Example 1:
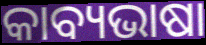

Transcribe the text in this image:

କାବ୍ୟଭାଷା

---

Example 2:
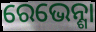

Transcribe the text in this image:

ରେଭେନ୍ଶା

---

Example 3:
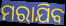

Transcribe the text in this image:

ମରାଯିବ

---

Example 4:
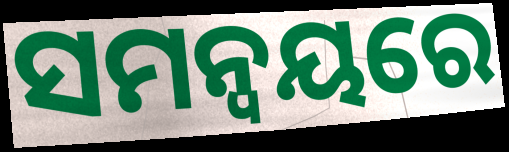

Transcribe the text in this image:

ସମନ୍ବୟରେ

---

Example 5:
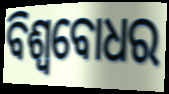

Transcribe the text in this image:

ବିଶ୍ବବୋଧର